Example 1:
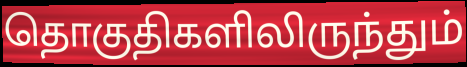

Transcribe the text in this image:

தொகுதிகளிலிருந்தும்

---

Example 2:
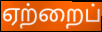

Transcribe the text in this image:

ஏற்றைப்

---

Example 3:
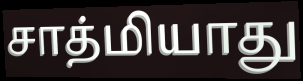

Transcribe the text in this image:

சாத்மியாது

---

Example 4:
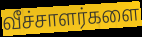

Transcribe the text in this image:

வீச்சாளர்களை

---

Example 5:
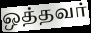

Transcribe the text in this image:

ஒத்தவர்